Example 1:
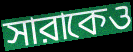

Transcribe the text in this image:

সারাকেও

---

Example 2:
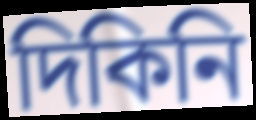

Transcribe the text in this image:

দিকিনি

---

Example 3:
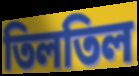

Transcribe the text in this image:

তিলতিল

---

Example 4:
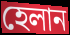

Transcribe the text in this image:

হেলান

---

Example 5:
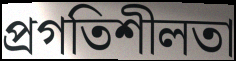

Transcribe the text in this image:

প্রগতিশীলতা